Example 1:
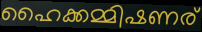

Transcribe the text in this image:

ഹൈക്കമ്മിഷണര്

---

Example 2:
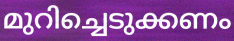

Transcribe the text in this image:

മുറിച്ചെടുക്കണം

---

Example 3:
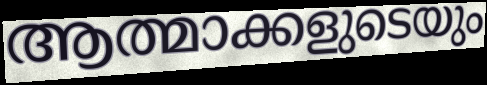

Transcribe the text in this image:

ആത്മാക്കളുടെയും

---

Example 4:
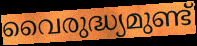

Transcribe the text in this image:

വൈരുദ്ധ്യമുണ്ട്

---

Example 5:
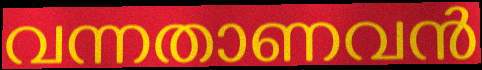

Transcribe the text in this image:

വന്നതാണവൻ